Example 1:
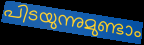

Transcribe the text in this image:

പിടയുന്നുമുണ്ടാം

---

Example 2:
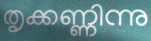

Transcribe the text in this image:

തൃക്കണ്ണിന്നു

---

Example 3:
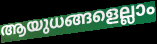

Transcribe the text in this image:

ആയുധങ്ങളെല്ലാം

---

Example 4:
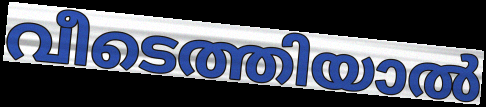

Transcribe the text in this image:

വീടെത്തിയാൽ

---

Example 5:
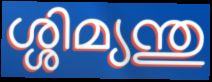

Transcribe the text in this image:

ശ്ശിമ്യന്തു